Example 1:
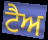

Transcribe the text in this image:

ਟੈਅ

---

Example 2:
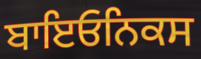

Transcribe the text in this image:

ਬਾਇਓਨਿਕਸ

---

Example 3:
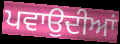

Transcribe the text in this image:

ਪਵਾਉਦੀਆਂ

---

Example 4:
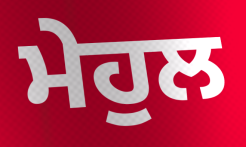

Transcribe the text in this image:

ਮੇਹੁਲ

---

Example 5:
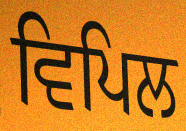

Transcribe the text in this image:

ਵਿਪਿਲ